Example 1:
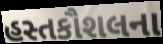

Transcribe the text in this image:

હસ્તકૌશલના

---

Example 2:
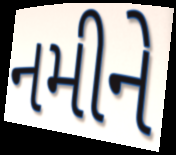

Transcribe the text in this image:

નમીને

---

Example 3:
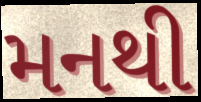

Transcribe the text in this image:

મનથી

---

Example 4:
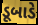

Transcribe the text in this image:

ડૂબાડે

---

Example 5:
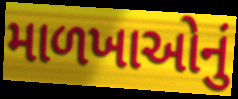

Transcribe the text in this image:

માળખાઓનું